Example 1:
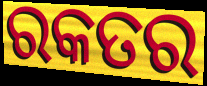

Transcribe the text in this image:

ରକତର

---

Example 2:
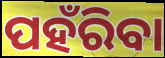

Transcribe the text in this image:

ପହଁରିବା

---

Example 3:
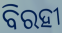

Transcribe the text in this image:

ବିରହୀ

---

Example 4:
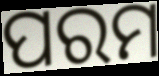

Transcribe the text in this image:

ପରମ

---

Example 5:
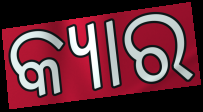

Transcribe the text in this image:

କ୍ୟାର